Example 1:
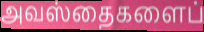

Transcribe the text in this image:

அவஸ்தைகளைப்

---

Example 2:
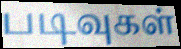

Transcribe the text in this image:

படிவுகள்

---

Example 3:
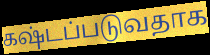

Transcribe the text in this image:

கஷ்டப்படுவதாக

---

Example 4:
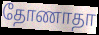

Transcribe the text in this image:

தோணாதா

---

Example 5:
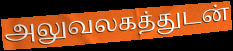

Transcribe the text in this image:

அலுவலகத்துடன்